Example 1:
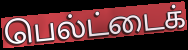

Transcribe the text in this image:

பெல்ட்டைக்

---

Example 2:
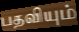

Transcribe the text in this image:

பதவியும்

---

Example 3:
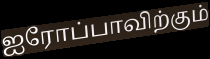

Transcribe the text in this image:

ஐரோப்பாவிற்கும்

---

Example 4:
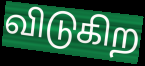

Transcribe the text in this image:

விடுகிற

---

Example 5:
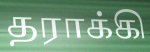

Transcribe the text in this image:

தராக்கி